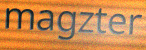
magzter